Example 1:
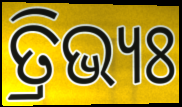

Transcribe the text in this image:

ତ୍ରିଭ୍ୟଃ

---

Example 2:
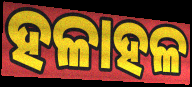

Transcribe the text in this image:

ହଳାହଳ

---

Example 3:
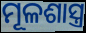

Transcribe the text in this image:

ମୂଳଶାସ୍ତ୍ର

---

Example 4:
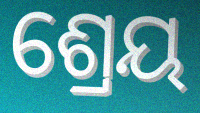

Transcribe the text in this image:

ଶ୍ରେୟ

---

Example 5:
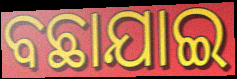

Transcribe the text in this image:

ବଛାଯାଇ